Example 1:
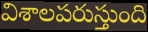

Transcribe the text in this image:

విశాలపరుస్తుంది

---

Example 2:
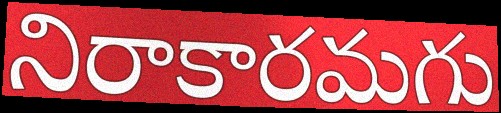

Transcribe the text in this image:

నిరాకారమగు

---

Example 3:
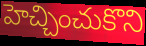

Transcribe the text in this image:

హెచ్చించుకొని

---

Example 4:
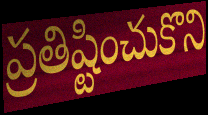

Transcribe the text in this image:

ప్రతిష్టించుకొని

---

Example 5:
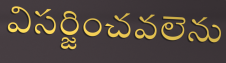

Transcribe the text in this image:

విసర్జించవలెను